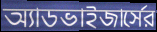
অ্যাডভাইজার্সের